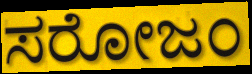
ಸರೋಜಂ